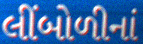
લીંબોળીનાં